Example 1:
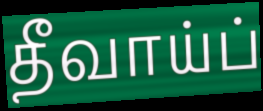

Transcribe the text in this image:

தீவாய்ப்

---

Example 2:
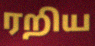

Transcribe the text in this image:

ரறிய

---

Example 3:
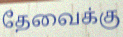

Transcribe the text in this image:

தேவைக்கு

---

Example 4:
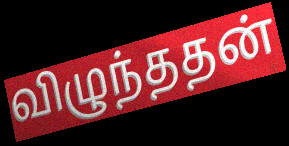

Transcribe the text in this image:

விழுந்ததன்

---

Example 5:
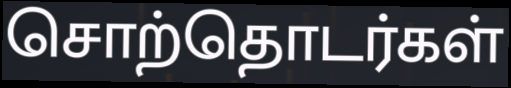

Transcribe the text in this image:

சொற்தொடர்கள்